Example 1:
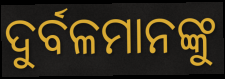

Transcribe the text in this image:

ଦୁର୍ବଳମାନଙ୍କୁ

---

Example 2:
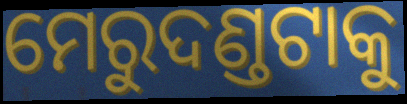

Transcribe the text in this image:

ମେରୁଦଣ୍ଡଟାକୁ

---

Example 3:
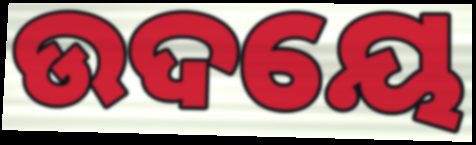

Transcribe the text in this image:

ଉଦୟେ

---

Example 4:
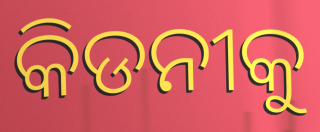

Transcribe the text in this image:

କିଡନୀକୁ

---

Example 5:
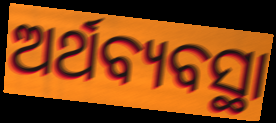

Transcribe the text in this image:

ଅର୍ଥବ୍ୟବସ୍ଥା